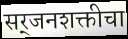
सर्जनशक्तीचा